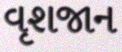
વૃશજાન